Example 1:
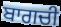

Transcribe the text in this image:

ਬਾਗਚੀ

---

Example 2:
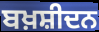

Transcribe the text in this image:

ਬਖ਼ਸ਼ੀਦਨ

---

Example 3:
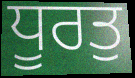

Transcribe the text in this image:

ਧੂਰਤੁ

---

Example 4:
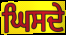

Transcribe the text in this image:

ਘਿਸਦੇ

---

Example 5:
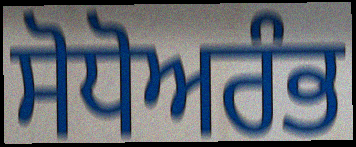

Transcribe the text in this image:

ਸੋਧੋਅਰੰਭ